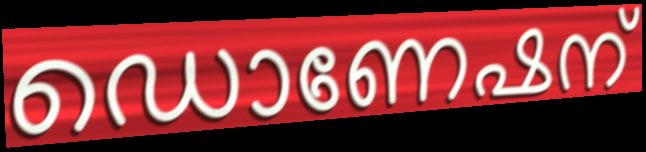
ഡൊണേഷന്